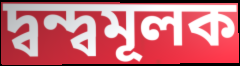
দ্বন্দ্বমূলক